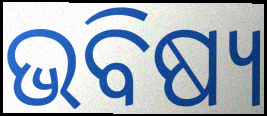
ଭବିଷ୍ଯ